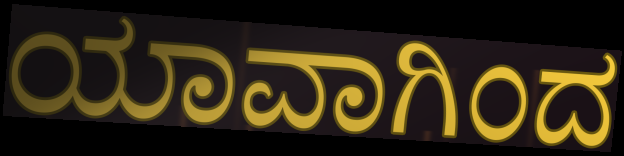
ಯಾವಾಗಿಂದ